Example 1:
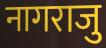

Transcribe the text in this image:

नागराजु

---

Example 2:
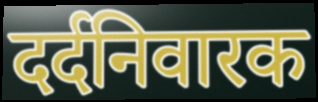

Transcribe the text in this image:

दर्दनिवारक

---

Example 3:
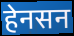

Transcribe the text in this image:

हेनसन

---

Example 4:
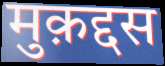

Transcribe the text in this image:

मुक़द्दस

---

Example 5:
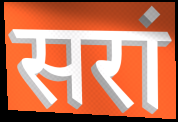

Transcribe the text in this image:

सरां